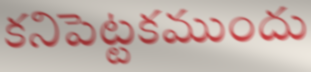
కనిపెట్టకముందు